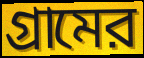
গ্রামের